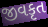
જીવકૃત